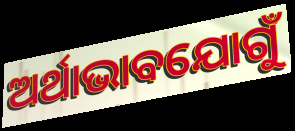
ଅର୍ଥାଭାବଯୋଗୁଁ